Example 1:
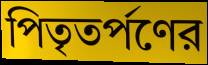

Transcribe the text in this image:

পিতৃতর্পণের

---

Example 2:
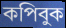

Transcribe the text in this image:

কপিবুক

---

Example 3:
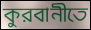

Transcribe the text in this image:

কুরবানীতে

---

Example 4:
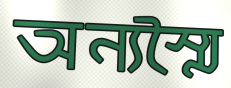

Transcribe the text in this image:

অন্যস্মৈ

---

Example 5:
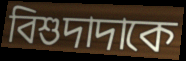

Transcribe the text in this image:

বিশুদাদাকে